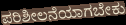
ಪರಿಶೀಲನೆಯಾಗಬೇಕು